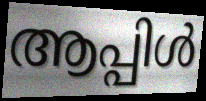
ആപ്പിൾ